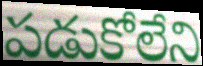
పడుకోలేని